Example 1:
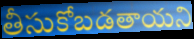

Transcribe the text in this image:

తీసుకోబడతాయని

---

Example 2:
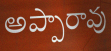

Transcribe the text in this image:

అప్పారావు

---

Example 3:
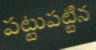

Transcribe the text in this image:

పట్టుపట్టిన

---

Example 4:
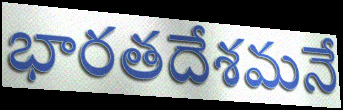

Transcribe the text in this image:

భారతదేశమనే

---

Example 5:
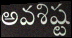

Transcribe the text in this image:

అవశిష్ట